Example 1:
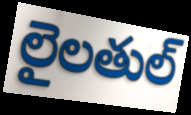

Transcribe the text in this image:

లైలతుల్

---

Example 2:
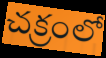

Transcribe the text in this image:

చక్రంలో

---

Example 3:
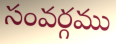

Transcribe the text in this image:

సంవర్గము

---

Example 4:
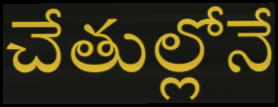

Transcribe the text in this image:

చేతుల్లోనే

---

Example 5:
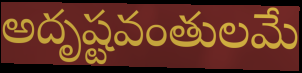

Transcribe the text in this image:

అదృష్టవంతులమే